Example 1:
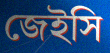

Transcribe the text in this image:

জেইসি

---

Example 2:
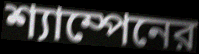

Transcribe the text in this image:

শ্যাম্পেনের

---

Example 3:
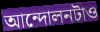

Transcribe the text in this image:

আন্দোলনটাও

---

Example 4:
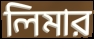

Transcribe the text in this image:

লিমার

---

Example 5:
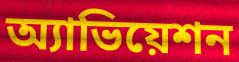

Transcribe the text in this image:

অ্যাভিয়েশন